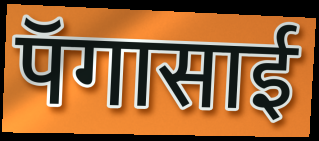
पॅगासाई